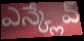
ఎన్క్లేవ్